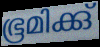
ഭൂമിക്കു്